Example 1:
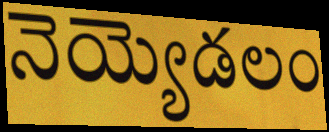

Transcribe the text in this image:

నెయ్యెడలం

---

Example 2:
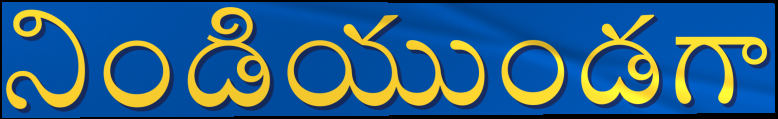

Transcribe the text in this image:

నిండియుండగా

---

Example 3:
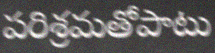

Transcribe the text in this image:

పరిశ్రమతోపాటు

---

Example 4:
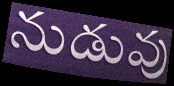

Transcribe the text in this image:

నుడువు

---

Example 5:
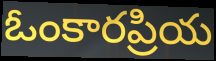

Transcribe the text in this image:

ఓంకారప్రియ